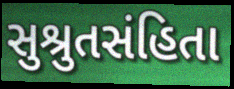
સુશ્રુતસંહિતા